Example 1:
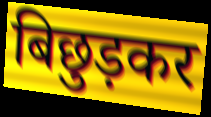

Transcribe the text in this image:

बिछुड़कर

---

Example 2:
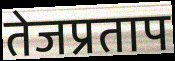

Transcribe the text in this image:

तेजप्रताप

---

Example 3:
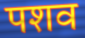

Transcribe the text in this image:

पशव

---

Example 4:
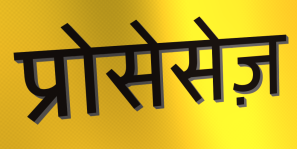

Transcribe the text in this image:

प्रोसेसेज़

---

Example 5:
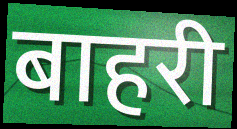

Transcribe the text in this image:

बाहरी